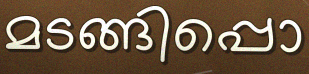
മടങ്ങിപ്പൊ